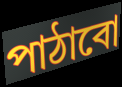
পাঠাবো